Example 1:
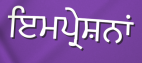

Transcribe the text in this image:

ਇਮਪ੍ਰੇਸ਼ਨਾਂ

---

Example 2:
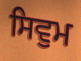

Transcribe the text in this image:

ਸਿਵੁਮ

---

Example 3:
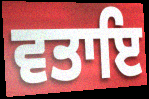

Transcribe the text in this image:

ਵਤਾਇ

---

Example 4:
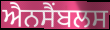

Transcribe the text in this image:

ਐਨਸੈਂਬਲਸ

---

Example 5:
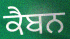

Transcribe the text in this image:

ਕੈਬਨ